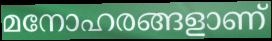
മനോഹരങ്ങളാണ്